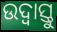
ଉଦ୍ବାସ୍ତୁ